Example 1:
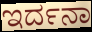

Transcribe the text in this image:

ಇರ್ದನಾ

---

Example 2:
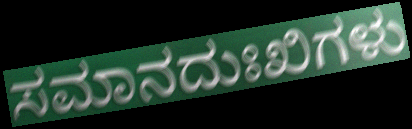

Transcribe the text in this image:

ಸಮಾನದುಃಖಿಗಳು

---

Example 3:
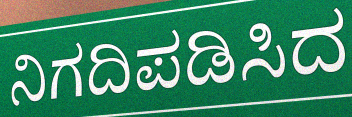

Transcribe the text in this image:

ನಿಗದಿಪಡಿಸಿದ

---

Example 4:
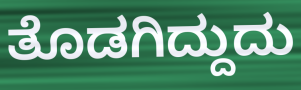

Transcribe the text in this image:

ತೊಡಗಿದ್ದುದು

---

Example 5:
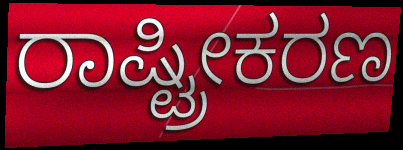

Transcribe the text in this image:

ರಾಷ್ಟ್ರೀಕರಣ